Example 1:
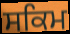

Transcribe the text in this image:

ਸਕਿਮ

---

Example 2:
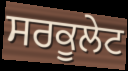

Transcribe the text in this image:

ਸਰਕੂਲੇਟ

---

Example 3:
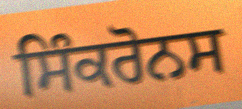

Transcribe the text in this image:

ਸਿੰਕਰੋਨਸ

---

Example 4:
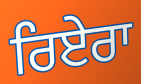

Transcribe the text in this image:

ਰਿਏਰਾ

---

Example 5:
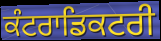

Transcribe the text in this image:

ਕੰਟਰਾਡਿਕਟਰੀ